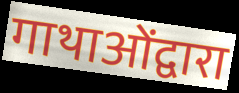
गाथाओंद्वारा